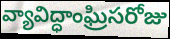
వ్యావిద్ధాంఘ్రిసరోజు